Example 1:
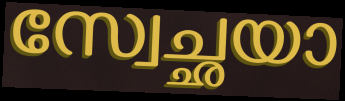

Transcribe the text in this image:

സ്വേച്ഛയാ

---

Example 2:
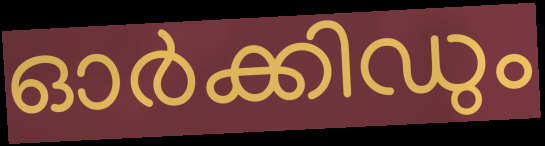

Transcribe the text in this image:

ഓർക്കിഡും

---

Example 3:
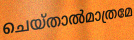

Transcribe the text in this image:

ചെയ്താൽമാത്രമേ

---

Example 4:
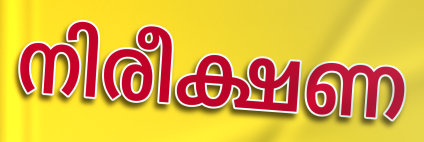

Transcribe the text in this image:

നിരീക്ഷണ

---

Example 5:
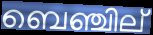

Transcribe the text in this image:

ബെഞ്ചില്